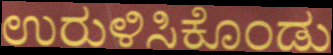
ಉರುಳಿಸಿಕೊಂಡು